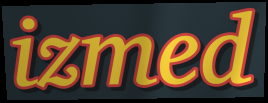
izmed